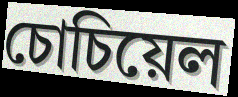
চোচিয়েল